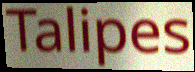
Talipes